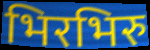
भिरभिरु